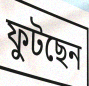
ফুটছেন